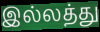
இல்லத்து